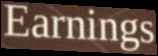
Earnings